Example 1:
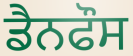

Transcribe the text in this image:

ਡੈਨਫੌਸ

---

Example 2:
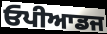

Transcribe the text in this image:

ਓਪੀਆਡਜ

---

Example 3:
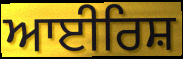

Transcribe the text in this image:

ਆਈਰਿਸ਼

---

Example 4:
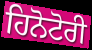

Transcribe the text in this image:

ਹਿਨੋਟੋਰੀ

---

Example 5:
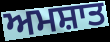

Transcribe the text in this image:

ਅਮਸ਼ਾਤ